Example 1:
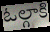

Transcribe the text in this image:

ఓల్గాకి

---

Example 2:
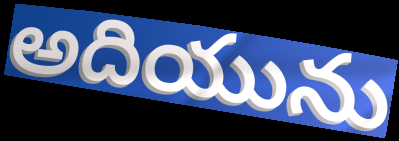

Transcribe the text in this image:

అదియును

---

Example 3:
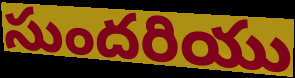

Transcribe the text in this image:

సుందరియు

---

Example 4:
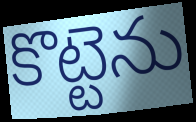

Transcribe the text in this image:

కొట్టెను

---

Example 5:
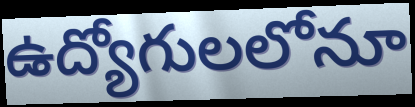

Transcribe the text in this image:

ఉద్యోగులలోనూ